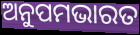
ଅନୁପମଭାରତ